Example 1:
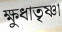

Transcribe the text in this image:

ক্ষুধাতৃষ্ণা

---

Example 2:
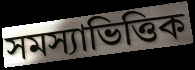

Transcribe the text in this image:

সমস্যাভিত্তিক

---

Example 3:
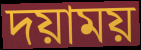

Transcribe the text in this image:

দয়াময়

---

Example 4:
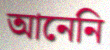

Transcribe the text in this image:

আনেনি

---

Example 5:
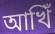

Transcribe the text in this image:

আখিঁ